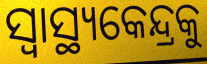
ସ୍ୱାସ୍ଥ୍ୟକେନ୍ଦ୍ରକୁ